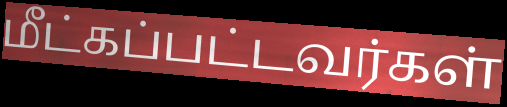
மீட்கப்பட்டவர்கள்